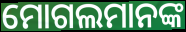
ମୋଗଲମାନଙ୍କ